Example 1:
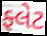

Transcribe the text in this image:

ફ્લેટ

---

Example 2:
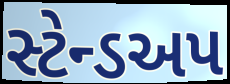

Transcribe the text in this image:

સ્ટેન્ડઅપ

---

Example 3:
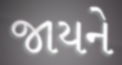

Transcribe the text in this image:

જાયને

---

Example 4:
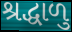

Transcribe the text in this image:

શ્રદ્ધાળુ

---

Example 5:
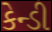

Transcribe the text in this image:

કેન્ડી